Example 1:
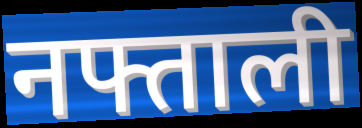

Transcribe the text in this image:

नफ्ताली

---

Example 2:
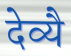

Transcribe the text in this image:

देव्यै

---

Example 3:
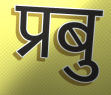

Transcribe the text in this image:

प्रबु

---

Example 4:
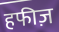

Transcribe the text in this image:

हफीज़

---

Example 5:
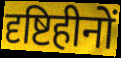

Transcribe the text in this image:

दृष्टिहीनों